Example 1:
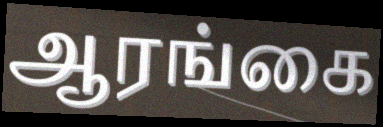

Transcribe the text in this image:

ஆரங்கை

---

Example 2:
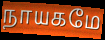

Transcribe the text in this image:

நாயகமே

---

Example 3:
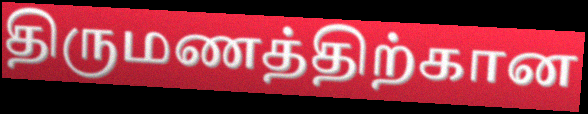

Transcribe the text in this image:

திருமணத்திற்கான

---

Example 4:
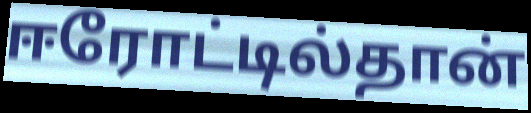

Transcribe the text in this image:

ஈரோட்டில்தான்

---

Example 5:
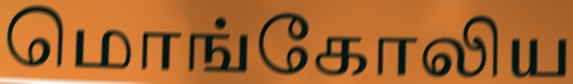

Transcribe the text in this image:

மொங்கோலிய